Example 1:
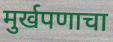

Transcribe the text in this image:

मुर्खपणाचा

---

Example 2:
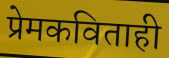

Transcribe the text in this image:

प्रेमकविताही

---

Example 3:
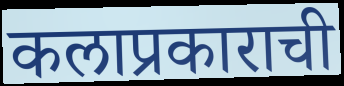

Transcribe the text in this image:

कलाप्रकाराची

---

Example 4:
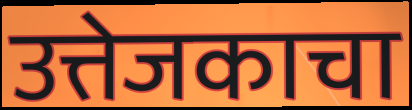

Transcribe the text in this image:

उत्तेजकाचा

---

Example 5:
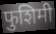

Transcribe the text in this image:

फुशिमी